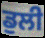
ਡੁਲੀ